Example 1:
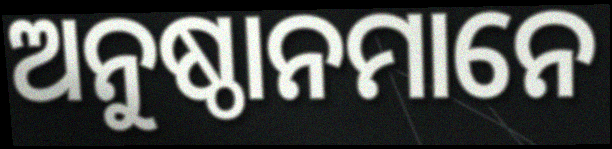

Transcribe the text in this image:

ଅନୁଷ୍ଠାନମାନେ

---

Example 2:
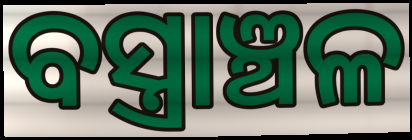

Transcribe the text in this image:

ବସ୍ତ୍ରାଞ୍ଚଳ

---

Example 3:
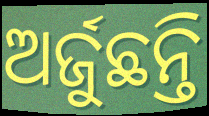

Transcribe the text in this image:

ଅର୍ଜୁଛନ୍ତି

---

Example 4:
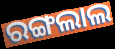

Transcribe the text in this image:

ରଙ୍ଗଲାଲ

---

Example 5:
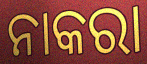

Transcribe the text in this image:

ନାକରା